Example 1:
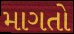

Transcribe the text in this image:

માગતો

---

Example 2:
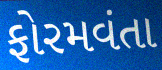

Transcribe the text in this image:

ફોરમવંતા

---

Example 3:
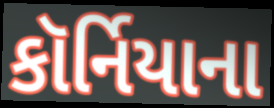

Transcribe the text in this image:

કૉર્નિયાના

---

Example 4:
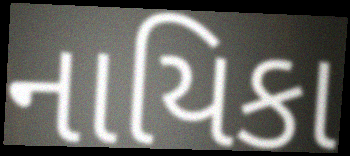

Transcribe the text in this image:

નાયિકા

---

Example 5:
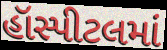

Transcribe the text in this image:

હૉસ્પીટલમાં